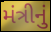
મંત્રીનું